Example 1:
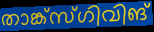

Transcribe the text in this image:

താങ്ക്സ്ഗിവിങ്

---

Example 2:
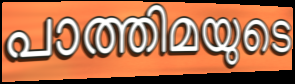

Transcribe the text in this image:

പാത്തിമയുടെ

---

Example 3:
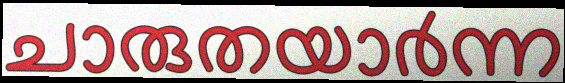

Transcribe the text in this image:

ചാരുതയാർന്ന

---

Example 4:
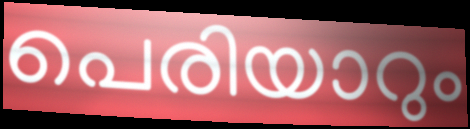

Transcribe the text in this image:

പെരിയാറും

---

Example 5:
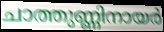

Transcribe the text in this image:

ചാത്തുണ്ണിനായർ